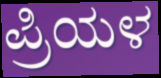
ಪ್ರಿಯಳ